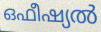
ഒഫീഷ്യൽ